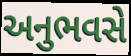
અનુભવસે